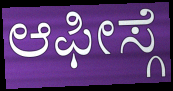
ಆಫೀಸ್ಗೆ